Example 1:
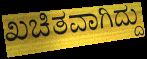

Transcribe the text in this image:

ಖಚಿತವಾಗಿದ್ದು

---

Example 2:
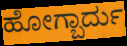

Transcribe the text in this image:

ಹೋಗ್ಬಾರ್ದು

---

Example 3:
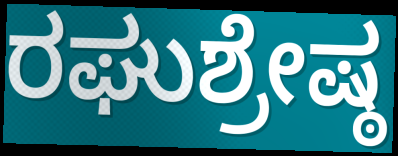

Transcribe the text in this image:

ರಘುಶ್ರೇಷ್ಠ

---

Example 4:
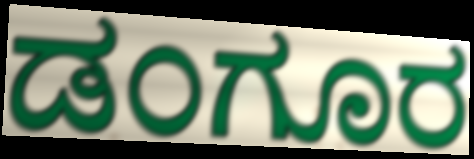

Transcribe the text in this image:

ಡಂಗೂರ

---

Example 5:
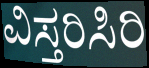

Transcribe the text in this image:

ವಿಸ್ತರಿಸಿರಿ